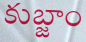
కుబ్జాం